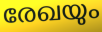
രേഖയും